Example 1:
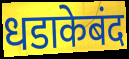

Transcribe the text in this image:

धडाकेबंद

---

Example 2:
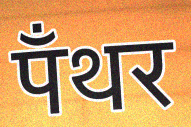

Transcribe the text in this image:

पँथर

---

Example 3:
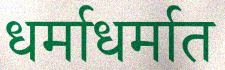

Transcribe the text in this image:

धर्माधर्मात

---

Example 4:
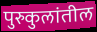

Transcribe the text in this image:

पुरुकुलांतील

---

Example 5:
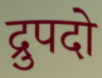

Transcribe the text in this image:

द्रुपदो